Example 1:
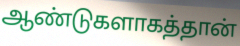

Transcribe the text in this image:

ஆண்டுகளாகத்தான்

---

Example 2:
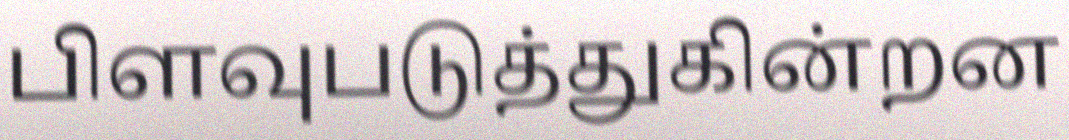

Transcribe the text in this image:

பிளவுபடுத்துகின்றன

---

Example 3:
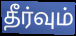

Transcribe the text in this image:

தீர்வும்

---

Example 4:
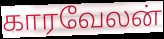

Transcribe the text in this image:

காரவேலன்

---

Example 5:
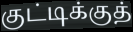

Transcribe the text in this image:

குட்டிக்குத்